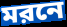
মরনে